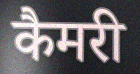
कैमरी